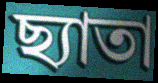
ছ্যাতা